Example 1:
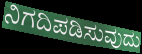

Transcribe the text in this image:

ನಿಗದಿಪಡಿಸುವುದು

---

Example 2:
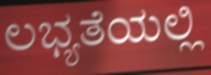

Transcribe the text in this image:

ಲಭ್ಯತೆಯಲ್ಲಿ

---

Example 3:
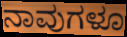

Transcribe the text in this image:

ನಾವುಗಳೂ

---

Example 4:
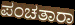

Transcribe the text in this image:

ಪಂಚತಾರಾ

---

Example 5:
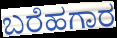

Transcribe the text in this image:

ಬರೆಹಗಾರ